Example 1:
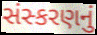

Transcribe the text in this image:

સંસ્કરણનું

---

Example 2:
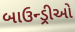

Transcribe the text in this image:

બાઉન્ડ્રીઓ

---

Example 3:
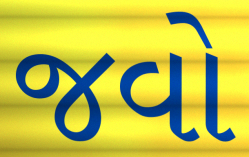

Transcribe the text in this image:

જવો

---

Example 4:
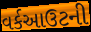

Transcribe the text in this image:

વર્કઆઉટની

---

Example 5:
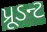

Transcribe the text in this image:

પ્રૂડન્ટ